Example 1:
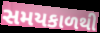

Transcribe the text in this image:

સમયકાળથી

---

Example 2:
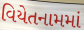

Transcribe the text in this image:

વિયેતનામમાં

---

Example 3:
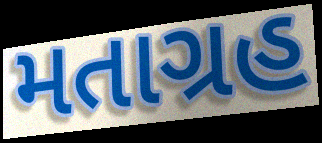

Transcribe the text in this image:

મતાગ્રહ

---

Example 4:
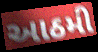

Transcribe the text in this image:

આઠમી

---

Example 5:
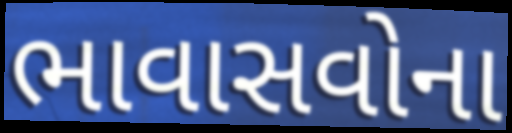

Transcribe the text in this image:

ભાવાસવોના